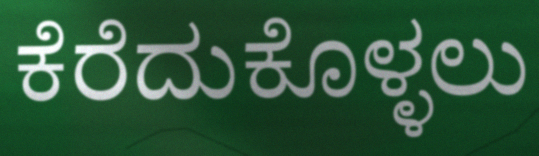
ಕೆರೆದುಕೊಳ್ಳಲು